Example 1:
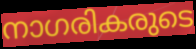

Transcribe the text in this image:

നാഗരികരുടെ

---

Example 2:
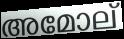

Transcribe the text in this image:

അമോല്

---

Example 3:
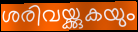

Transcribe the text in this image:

ശരിവയ്ക്കുകയും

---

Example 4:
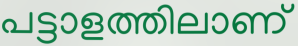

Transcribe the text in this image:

പട്ടാളത്തിലാണ്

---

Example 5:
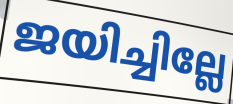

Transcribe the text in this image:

ജയിച്ചില്ലേ